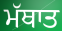
ਮੱਥਾਤ